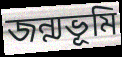
জন্মভূমি